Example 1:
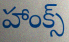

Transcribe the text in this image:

హాంక్స్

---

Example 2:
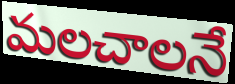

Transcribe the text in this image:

మలచాలనే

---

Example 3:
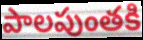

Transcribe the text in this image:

పాలపుంతకి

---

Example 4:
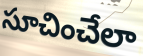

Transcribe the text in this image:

సూచించేలా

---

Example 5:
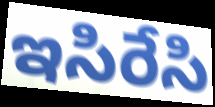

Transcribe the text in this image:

ఇసిరేసి